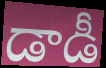
డాడీ